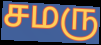
சமரு